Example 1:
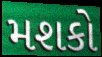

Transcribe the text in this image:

મશકો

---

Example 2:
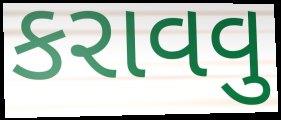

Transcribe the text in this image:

કરાવવુ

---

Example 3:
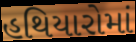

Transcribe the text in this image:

હથિયારોમાં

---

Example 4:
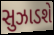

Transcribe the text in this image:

સુઝાડશે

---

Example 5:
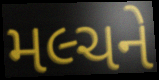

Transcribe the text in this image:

મલ્ચને